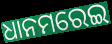
ଧାନମରେଇ